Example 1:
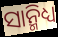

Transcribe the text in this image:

ସାନ୍ମିଧ୍ୟ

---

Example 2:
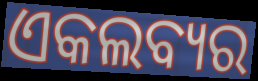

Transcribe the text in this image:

ଏକଲବ୍ୟର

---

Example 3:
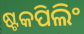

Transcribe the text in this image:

ଷ୍ଟକପିଲିଂ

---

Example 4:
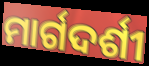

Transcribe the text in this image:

ମାର୍ଗଦର୍ଶୀ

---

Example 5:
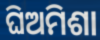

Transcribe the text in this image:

ଘିଅମିଶା